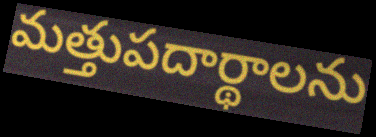
మత్తుపదార్థాలను